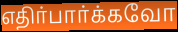
எதிர்பார்க்கவோ